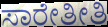
ಸಾರೇತೀತಿ